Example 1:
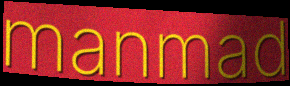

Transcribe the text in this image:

manmad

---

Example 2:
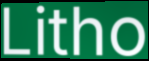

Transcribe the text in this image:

Litho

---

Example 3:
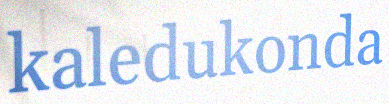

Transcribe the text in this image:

kaledukonda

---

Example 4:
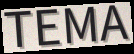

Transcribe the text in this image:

TEMA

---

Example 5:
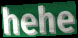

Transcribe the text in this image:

hehe